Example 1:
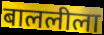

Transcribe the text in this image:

बाललीला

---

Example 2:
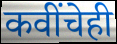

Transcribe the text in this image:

कवींचेही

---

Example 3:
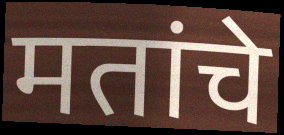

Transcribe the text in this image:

मतांचे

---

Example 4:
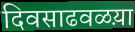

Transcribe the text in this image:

दिवसाढवळय़ा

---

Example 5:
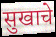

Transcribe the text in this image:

सुखाचे